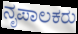
ನೃಪಾಲಕರು